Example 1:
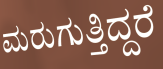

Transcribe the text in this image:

ಮರುಗುತ್ತಿದ್ದರೆ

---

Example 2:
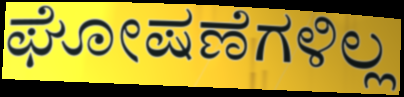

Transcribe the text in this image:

ಘೋಷಣೆಗಳಿಲ್ಲ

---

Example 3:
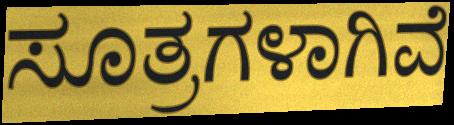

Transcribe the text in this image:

ಸೂತ್ರಗಳಾಗಿವೆ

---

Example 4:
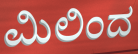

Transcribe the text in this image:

ಮಿಲಿಂದ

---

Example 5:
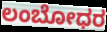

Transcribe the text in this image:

ಲಂಬೋಧರ